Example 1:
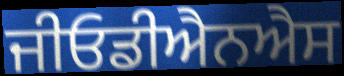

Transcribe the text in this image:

ਜੀਓਡੀਐਨਐਸ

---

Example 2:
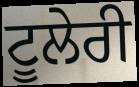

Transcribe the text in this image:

ਟੂਲੇਰੀ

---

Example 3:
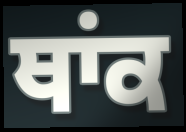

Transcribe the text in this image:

ਥਾਂਕ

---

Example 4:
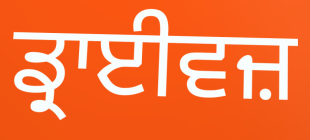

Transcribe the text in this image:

ਡ੍ਰਾਈਵਜ਼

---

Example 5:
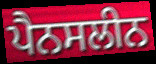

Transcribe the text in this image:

ਪੈਨਸਲੀਨ